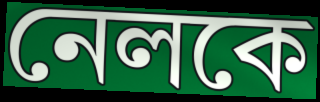
নেলকে